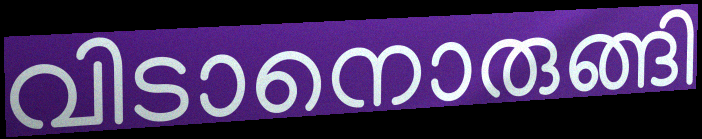
വിടാനൊരുങ്ങി